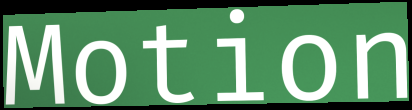
Motion